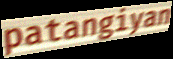
patangiyan